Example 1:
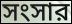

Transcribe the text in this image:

সংসার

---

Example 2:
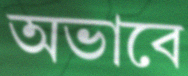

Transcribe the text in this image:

অভাবে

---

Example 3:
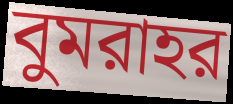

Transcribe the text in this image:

বুমরাহর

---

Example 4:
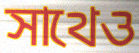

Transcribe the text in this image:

সাথেও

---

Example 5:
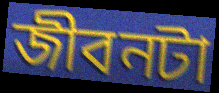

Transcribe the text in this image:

জীবনটা